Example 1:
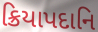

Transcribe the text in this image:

ક્રિયાપદાનિ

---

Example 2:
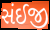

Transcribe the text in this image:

સંઈજી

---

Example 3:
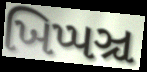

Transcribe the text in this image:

ખિપ્પઞ્ચ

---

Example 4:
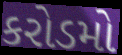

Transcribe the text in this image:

કરોડમો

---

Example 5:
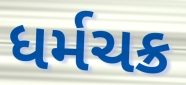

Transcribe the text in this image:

ધર્મચક્ર